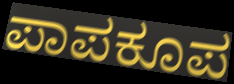
ಪಾಪಕೂಪ